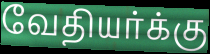
வேதியர்க்கு